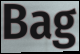
Bag